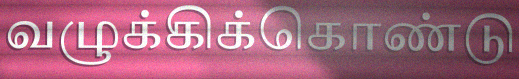
வழுக்கிக்கொண்டு